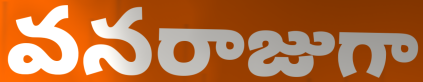
వనరాజుగా